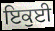
ਇਕੁਈ